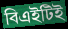
বিএইটিই